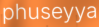
phuseyya